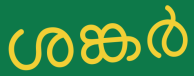
ശങ്കർ